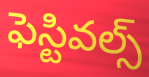
ఫెస్టివల్స్